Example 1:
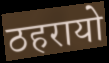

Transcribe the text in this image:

ठहरायो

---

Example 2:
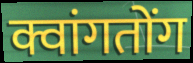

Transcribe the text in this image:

क्वांगतोंग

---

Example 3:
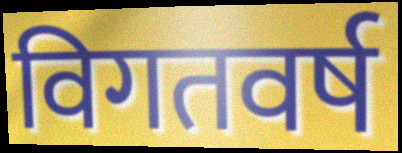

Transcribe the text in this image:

विगतवर्ष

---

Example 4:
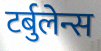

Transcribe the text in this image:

टर्बुलेन्स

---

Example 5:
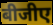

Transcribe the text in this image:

बीजीए